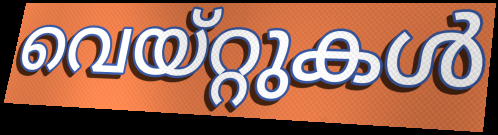
വെയ്റ്റുകൾ